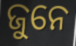
ଜୁନେ